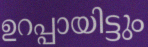
ഉറപ്പായിട്ടും